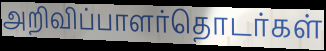
அறிவிப்பாளர்தொடர்கள்